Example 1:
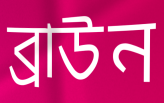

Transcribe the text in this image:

ব্ৰাউন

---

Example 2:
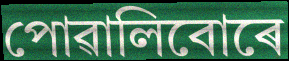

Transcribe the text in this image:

পোৱালিবোৰে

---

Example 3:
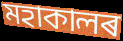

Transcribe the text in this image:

মহাকালৰ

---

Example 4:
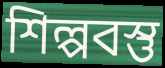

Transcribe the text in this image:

শিল্পবস্তু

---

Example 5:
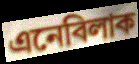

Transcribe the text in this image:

এনেবিলাক